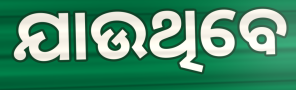
ଯାଉଥିବେ